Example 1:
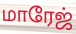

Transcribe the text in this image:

மாரேஜ்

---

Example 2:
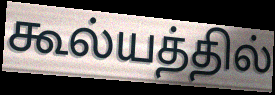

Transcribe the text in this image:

கூல்யத்தில்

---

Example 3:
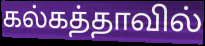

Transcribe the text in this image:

கல்கத்தாவில்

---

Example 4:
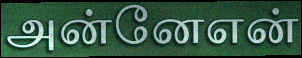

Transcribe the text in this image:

அன்னேஎன்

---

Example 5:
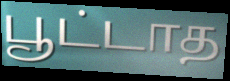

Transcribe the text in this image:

பூட்டாத